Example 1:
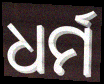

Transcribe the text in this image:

ଧର୍ମ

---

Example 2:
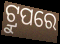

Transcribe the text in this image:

ଟ୍ରୁପରେ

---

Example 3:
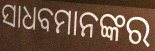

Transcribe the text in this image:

ସାଧବମାନଙ୍କର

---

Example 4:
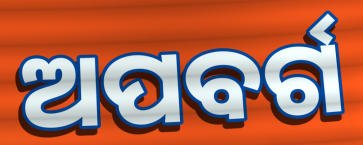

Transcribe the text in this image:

ଅପବର୍ଗ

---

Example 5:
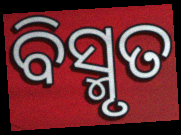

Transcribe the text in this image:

ବିସ୍ମୃତ